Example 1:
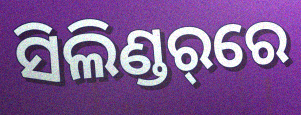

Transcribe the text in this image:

ସିଲିଣ୍ଡର୍‌ରେ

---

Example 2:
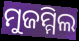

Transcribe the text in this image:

ମୁଜମ୍ମିଲ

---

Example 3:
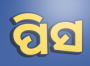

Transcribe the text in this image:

ପିସ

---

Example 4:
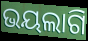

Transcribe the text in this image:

ଭୟଲାଗି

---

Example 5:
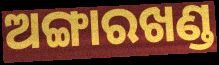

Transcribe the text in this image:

ଅଙ୍ଗାରଖଣ୍ଡ